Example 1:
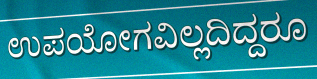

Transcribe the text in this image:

ಉಪಯೋಗವಿಲ್ಲದಿದ್ದರೂ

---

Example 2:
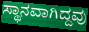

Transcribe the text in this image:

ಸ್ಥಾನವಾಗಿದ್ದವು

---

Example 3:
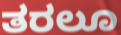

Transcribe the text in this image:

ತರಲೂ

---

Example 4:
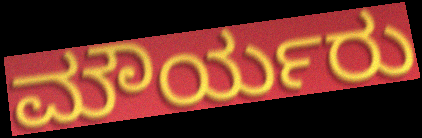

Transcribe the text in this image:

ಮೌರ್ಯರು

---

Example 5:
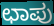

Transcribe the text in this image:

ಛಾಪು